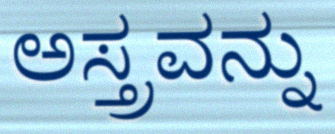
ಅಸ್ತ್ರವನ್ನು